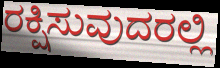
ರಕ್ಷಿಸುವುದರಲ್ಲಿ